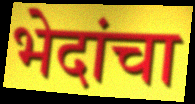
भेदांचा